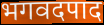
भगवदपाद